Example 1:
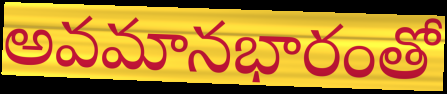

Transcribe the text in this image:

అవమానభారంతో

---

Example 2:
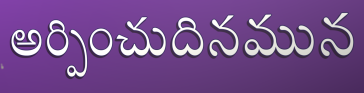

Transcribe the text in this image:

అర్పించుదినమున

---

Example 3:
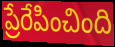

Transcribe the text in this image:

ప్రేరేపించింది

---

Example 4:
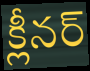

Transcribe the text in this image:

క్లీనర్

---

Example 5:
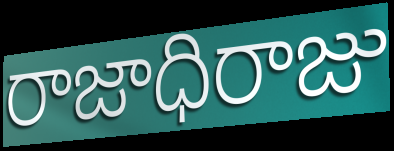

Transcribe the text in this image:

రాజాధిరాజు